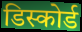
डिस्कोर्ड